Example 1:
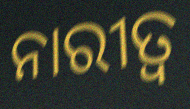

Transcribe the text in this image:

ନାରୀତ୍ୱ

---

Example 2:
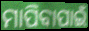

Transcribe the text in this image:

ମାପିବାପାଇଁ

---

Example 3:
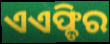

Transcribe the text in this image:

ଏଏଫ୍ଡିର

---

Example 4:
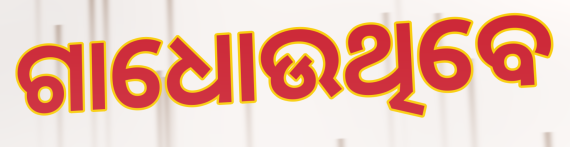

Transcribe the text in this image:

ଗାଧୋଉଥିବେ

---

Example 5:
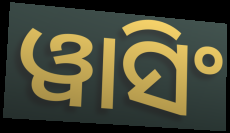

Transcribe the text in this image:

ୱାସିଂ